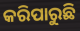
କରିପାରୁଛି